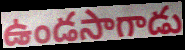
ఉండసాగాడు